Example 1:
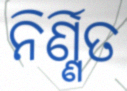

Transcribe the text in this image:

ନିର୍ଣ୍ଣିତ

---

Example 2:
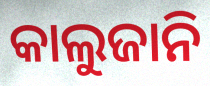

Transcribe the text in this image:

କାଲୁଜାନି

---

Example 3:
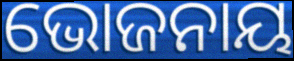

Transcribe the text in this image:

ଭୋଜନାୟ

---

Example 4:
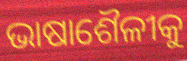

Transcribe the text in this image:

ଭାଷାଶୈଳୀକୁ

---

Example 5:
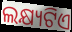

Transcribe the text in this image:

ଲକ୍ଷ୍ୟଟିଏ